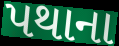
પથાના